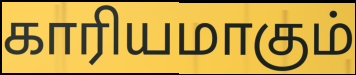
காரியமாகும்